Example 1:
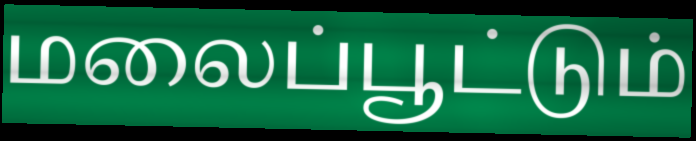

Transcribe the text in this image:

மலைப்பூட்டும்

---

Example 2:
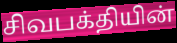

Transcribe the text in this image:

சிவபக்தியின்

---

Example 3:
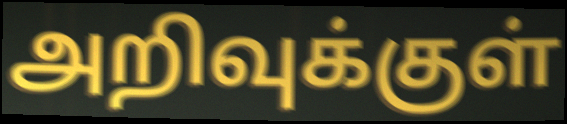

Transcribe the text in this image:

அறிவுக்குள்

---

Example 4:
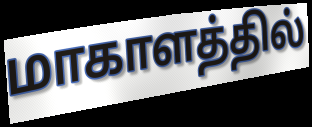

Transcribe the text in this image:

மாகாளத்தில்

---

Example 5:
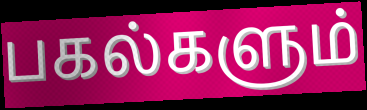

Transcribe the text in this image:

பகல்களும்